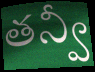
తన్వీ